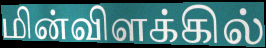
மின்விளக்கில்